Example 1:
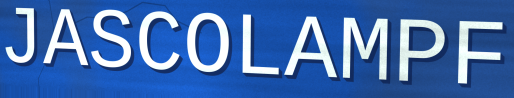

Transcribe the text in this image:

JASCOLAMPF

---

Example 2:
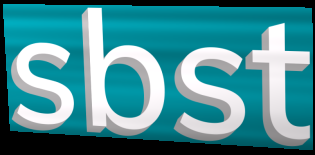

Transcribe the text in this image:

sbst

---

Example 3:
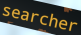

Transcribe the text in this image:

searcher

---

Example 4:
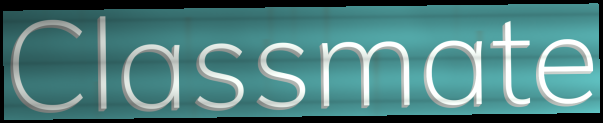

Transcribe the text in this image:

Classmate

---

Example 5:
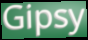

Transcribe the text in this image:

Gipsy